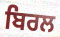
ਬਿਰਲ